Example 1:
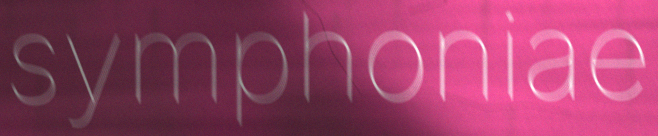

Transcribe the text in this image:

symphoniae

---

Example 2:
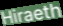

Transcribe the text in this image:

Hiraeth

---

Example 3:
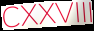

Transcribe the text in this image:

CXXVIII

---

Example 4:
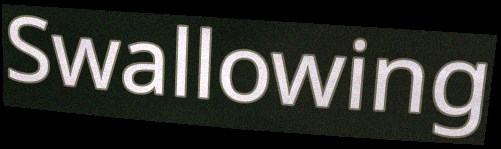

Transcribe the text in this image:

Swallowing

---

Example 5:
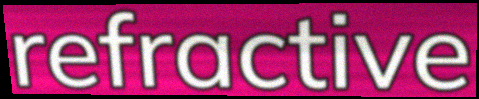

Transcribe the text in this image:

refractive